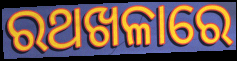
ରଥଖଳାରେ